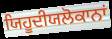
ਯਿਹੂਦੀਯਲੋਕਾਨਾਂ